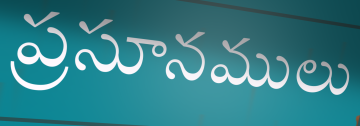
ప్రసూనములు